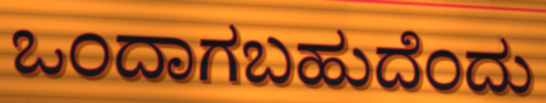
ಒಂದಾಗಬಹುದೆಂದು